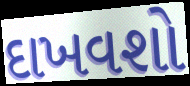
દાખવશો